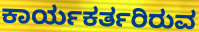
ಕಾರ್ಯಕರ್ತರಿರುವ